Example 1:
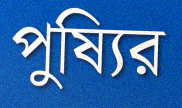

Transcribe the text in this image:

পুষ্যির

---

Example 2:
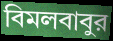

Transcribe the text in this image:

বিমলবাবুর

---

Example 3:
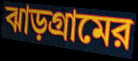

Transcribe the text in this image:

ঝাড়গ্রামের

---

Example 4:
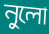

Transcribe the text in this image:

নুলো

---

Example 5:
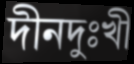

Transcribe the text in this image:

দীনদুঃখী